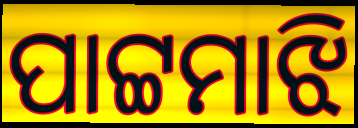
ପାଟ୍ଟମାଝି